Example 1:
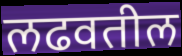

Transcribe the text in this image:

लढवतील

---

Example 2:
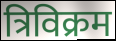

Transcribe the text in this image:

त्रिविक्रम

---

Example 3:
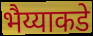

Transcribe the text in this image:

भैय्याकडे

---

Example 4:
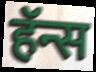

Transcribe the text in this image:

हॅन्स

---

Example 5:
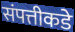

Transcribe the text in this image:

संपत्तीकडे